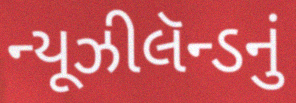
ન્યૂઝીલૅન્ડનું